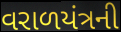
વરાળયંત્રની